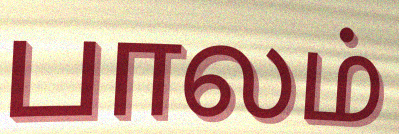
பாலம்